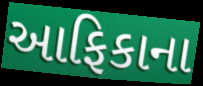
આફિકાના